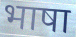
भाषा